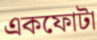
একফোটা